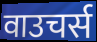
वाउचर्स